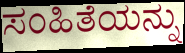
ಸಂಹಿತೆಯನ್ನು